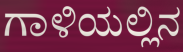
ಗಾಳಿಯಲ್ಲಿನ